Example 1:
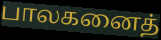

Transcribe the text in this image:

பாலகனைத்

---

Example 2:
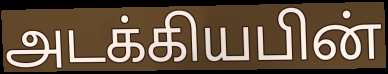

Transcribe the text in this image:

அடக்கியபின்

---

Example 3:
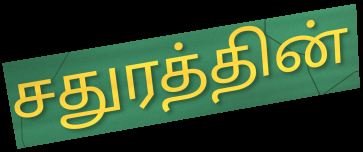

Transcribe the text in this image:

சதுரத்தின்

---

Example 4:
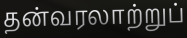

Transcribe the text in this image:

தன்வரலாற்றுப்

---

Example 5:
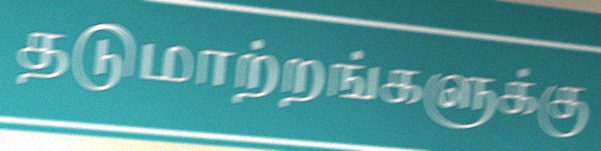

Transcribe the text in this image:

தடுமாற்றங்களுக்கு